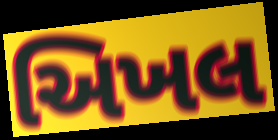
અિખલ